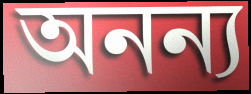
অনন্য